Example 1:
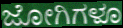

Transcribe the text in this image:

ಜೋಗಿಗಳೂ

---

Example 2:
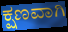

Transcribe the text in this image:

ಕ್ಷಣವಾಗಿ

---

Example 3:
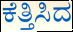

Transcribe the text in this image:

ಕೆತ್ತಿಸಿದ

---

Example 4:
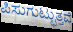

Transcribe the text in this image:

ಪಿಸುಗುಟ್ಟುತ್ತವೆ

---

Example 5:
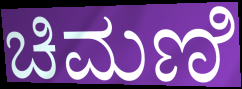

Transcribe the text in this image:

ಚಿಮಣಿ